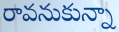
రావనుకున్నా